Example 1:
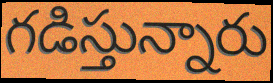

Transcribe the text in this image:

గడిస్తున్నారు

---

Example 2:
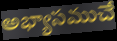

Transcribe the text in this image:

అభ్యాసముచే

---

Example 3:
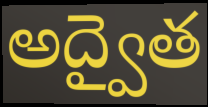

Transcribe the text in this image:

అద్వైత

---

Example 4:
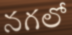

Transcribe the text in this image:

నగలో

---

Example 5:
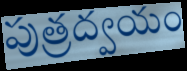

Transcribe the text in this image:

పుత్రద్వయం